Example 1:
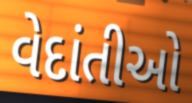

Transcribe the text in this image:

વેદાંતીઓ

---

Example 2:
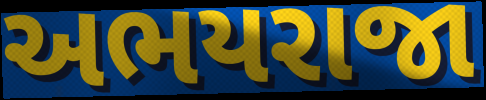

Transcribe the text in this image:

અભયરાજા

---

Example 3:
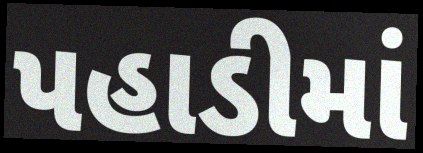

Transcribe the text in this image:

પહાડીમાં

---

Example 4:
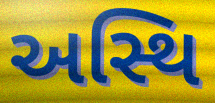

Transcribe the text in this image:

અસ્થિ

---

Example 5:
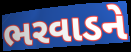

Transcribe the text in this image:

ભરવાડને